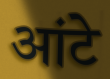
आंटे